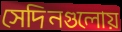
সেদিনগুলোয়